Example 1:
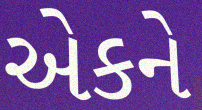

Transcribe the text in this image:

એકને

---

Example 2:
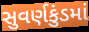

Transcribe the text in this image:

સુવર્ણકુંડમાં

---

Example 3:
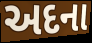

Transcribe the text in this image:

અદના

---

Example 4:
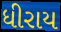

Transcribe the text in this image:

ધીરાય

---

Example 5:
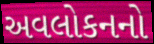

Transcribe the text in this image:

અવલોકનનો